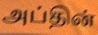
அப்தின்